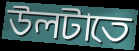
উলটাতে